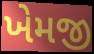
ખેમજી